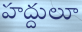
హద్దులూ